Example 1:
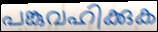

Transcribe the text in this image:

പങ്കുവഹിക്കുക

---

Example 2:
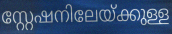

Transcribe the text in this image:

സ്റ്റേഷനിലേയ്ക്കുള്ള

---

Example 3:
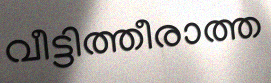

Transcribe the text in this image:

വീട്ടിത്തീരാത്ത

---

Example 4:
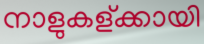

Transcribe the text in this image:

നാളുകള്ക്കായി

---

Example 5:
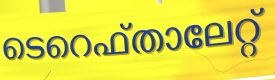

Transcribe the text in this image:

ടെറെഫ്താലേറ്റ്